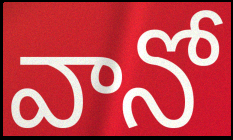
వానో